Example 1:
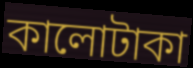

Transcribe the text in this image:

কালোটাকা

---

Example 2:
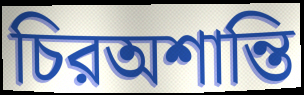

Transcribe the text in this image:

চিরঅশান্তি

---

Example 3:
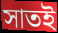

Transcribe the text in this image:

সাতই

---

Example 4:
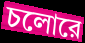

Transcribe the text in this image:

চলোরে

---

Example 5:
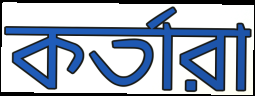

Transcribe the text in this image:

কর্তারা